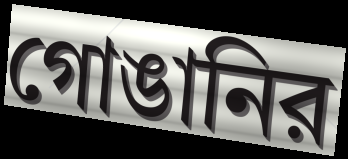
গোঙানির